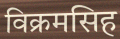
विक्रमसिह